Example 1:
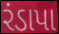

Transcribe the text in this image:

રંડાપા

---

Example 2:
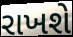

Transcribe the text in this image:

રાખશે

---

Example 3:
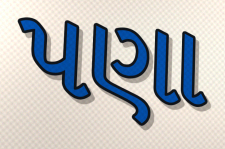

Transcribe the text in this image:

પણા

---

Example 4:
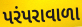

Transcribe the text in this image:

પરંપરાવાળા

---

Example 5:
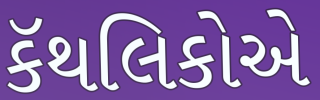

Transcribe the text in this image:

કૅથલિકોએ